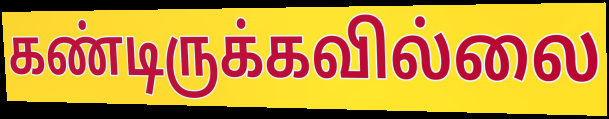
கண்டிருக்கவில்லை